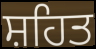
ਸ਼ਹਿਤ